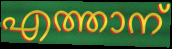
എത്താന്